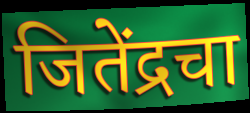
जितेंद्रचा